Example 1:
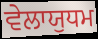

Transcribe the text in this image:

ਵੇਲਾਯੁਧਮ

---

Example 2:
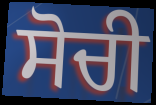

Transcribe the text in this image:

ਸੋਚੀ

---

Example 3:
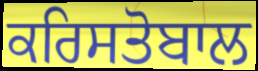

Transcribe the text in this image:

ਕਰਿਸਤੋਬਾਲ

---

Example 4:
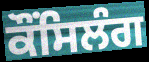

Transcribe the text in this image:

ਕੌਂਸਿਲੰਗ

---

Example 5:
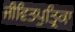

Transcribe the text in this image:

ਜੀਵਿਤਪੁਤ੍ਰਿਕਾ